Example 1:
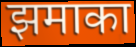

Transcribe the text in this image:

झमाका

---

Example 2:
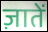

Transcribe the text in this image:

ज़ातें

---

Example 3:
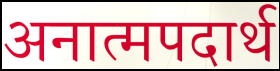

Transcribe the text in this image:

अनात्मपदार्थ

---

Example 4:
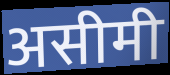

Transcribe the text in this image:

असीमी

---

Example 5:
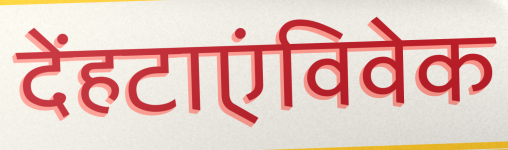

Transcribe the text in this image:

देंहटाएंविवेक